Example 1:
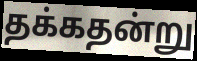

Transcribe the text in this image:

தக்கதன்று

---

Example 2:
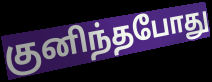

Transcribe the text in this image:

குனிந்தபோது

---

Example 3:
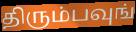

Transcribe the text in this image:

திரும்பவுங்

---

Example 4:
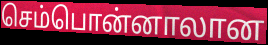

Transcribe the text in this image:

செம்பொன்னாலான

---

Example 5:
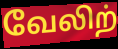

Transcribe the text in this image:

வேலிற்